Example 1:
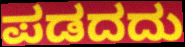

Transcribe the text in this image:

ಪಡದದು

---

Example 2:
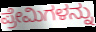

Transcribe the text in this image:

ಪ್ರೇಮಿಗಳನ್ನು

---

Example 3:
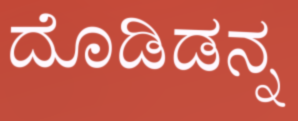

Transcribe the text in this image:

ದೊಡಿಡನ್ನ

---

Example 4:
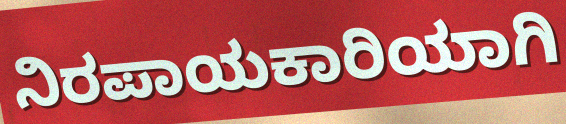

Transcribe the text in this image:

ನಿರಪಾಯಕಾರಿಯಾಗಿ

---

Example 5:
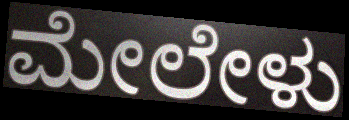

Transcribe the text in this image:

ಮೇಲೇಳು